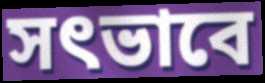
সৎভাবে